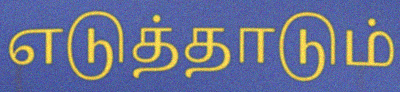
எடுத்தாடும்